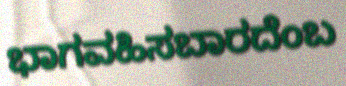
ಭಾಗವಹಿಸಬಾರದೆಂಬ